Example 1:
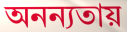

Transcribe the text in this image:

অনন্যতায়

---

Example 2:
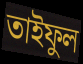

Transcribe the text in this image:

তাইফুল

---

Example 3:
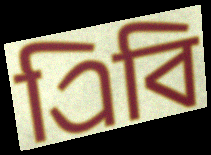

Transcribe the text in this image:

এিবি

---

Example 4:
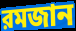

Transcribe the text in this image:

রমজান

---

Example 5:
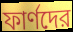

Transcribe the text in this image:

ফার্ণদের